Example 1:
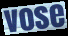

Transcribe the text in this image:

vose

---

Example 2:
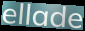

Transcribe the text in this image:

ellade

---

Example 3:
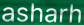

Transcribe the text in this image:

asharh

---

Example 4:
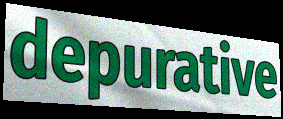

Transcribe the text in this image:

depurative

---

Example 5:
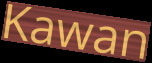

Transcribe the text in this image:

Kawan